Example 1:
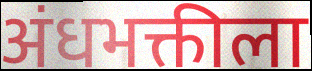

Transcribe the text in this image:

अंधभक्तीला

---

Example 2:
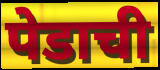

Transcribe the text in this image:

पेडाची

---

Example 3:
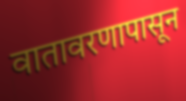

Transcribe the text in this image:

वातावरणापासून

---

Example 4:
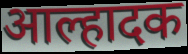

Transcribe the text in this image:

आल्हादक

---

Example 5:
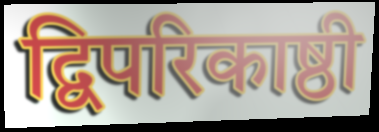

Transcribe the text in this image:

द्विपरिकाष्ठी